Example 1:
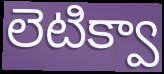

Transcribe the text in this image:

లెటిక్వా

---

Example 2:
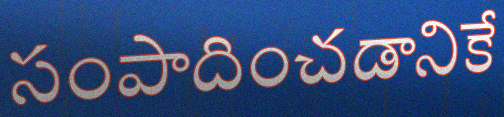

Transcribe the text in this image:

సంపాదించడానికే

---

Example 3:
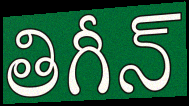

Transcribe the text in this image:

తిగీన్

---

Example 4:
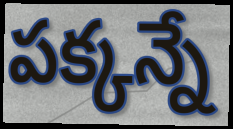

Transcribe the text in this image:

పక్కన్నే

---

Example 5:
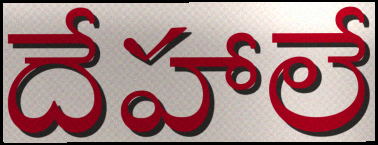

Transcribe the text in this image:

దేహాలే